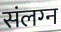
संलग्‍न